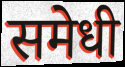
समेधी